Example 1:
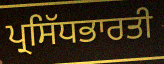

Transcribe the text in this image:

ਪ੍ਰਸਿੱਧਭਾਰਤੀ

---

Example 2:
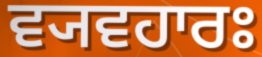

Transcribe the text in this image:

ਵ੍ਯਵਹਾਰਃ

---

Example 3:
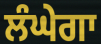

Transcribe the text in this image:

ਲੰਘੇਗਾ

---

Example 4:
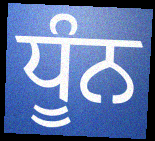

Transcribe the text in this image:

ਧੂੰਨ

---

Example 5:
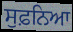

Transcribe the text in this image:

ਸੁਫ਼ਨਿਆ